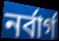
নর্বার্গ